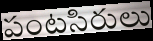
పంటసిరులు